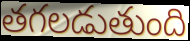
తగలడుతుంది